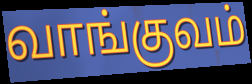
வாங்குவம்